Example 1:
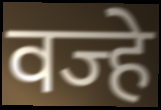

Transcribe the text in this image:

वज्हे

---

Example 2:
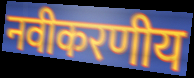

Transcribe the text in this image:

नवीकरणीय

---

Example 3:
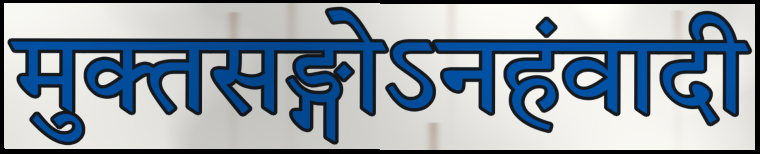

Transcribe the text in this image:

मुक्तसङ्गोऽनहंवादी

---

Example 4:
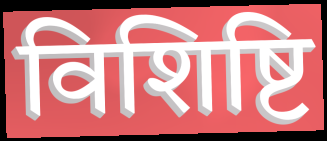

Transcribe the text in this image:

विशिष्टि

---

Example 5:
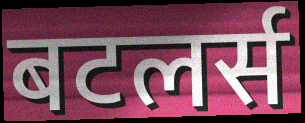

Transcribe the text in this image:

बटलर्स